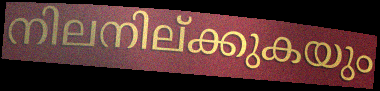
നിലനില്ക്കുകയും